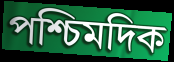
পশ্চিমদিক